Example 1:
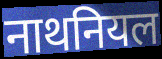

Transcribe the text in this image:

नाथनियल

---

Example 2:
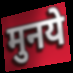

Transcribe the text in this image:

मुनये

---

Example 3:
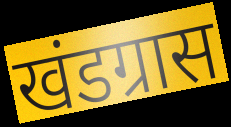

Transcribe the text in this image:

खंडग्रास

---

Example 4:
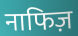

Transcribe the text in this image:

नाफिज़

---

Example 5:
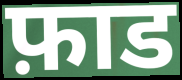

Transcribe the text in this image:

फ़ाड